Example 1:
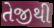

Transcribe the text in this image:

તેજીથી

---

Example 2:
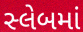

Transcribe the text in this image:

સ્લેબમાં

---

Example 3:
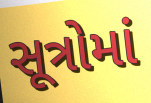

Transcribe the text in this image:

સૂત્રોમાં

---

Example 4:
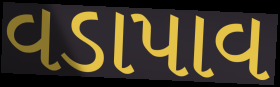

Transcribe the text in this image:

વડાપાવ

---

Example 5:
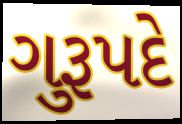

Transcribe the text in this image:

ગુરૂપદે